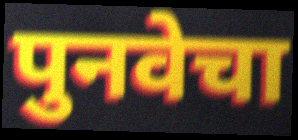
पुनवेचा